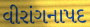
વીરાંગનાપદ